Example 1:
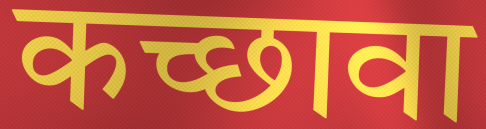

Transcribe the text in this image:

कच्छावा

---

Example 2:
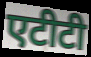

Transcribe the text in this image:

एटीटी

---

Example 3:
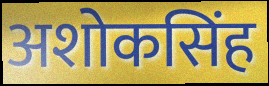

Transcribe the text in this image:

अशोकसिंह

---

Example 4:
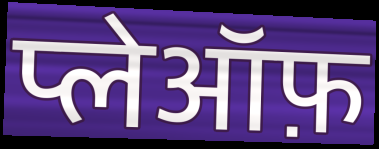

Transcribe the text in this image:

प्लेऑफ़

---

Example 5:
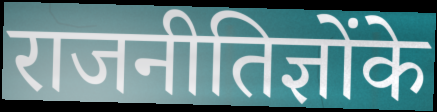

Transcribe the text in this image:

राजनीतिज्ञोंके